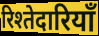
रिश्तेदारियाँ